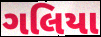
ગલિયા